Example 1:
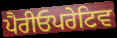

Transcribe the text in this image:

ਪੈਰੀਓਪਰੇਟਿਵ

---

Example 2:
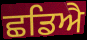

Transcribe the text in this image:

ਛਡਿਐ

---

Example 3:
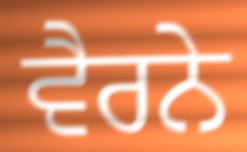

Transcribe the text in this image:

ਵੈਰਨੇ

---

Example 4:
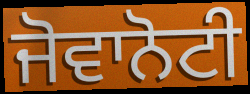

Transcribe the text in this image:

ਜੋਵਾਨੋਟੀ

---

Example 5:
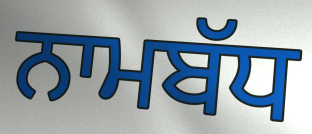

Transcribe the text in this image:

ਨਾਮਬੱਧ